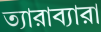
ত্যারাব্যারা